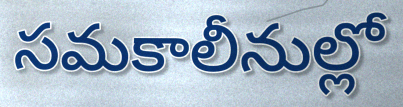
సమకాలీనుల్లో